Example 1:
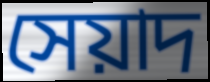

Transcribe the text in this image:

সেয়াদ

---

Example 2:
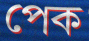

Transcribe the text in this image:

পেক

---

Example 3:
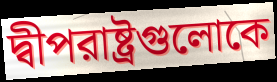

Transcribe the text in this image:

দ্বীপরাষ্ট্রগুলোকে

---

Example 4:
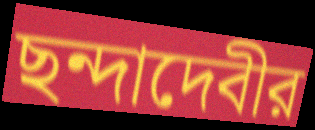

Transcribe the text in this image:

ছন্দাদেবীর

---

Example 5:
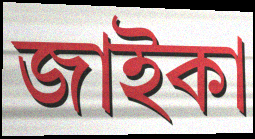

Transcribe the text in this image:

জাইকা